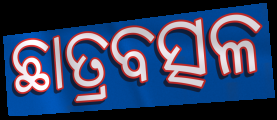
ଛାତ୍ରବତ୍ସଳ